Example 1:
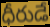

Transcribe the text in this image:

ధీరుడే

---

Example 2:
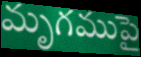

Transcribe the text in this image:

మృగముపై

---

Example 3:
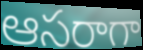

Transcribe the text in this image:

ఆసరాగా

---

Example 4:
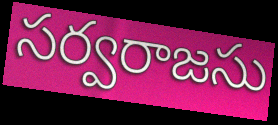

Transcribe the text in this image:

సర్వరాజసు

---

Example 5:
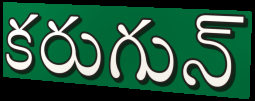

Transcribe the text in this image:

కరుగున్